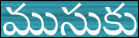
ముసుకు